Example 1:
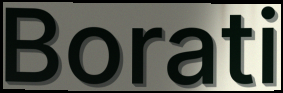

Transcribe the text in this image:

Borati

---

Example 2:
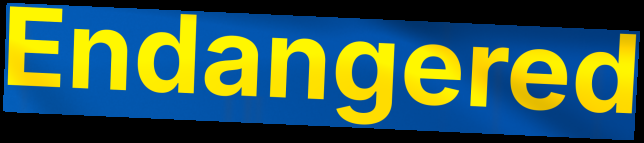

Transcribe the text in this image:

Endangered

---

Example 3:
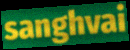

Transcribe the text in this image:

sanghvai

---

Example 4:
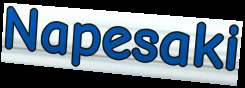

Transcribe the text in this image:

Napesaki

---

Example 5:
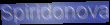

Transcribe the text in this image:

Spiridonova